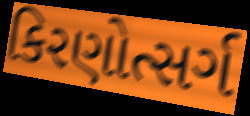
કિરણોત્સર્ગ